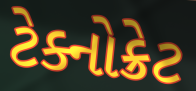
ટેક્નોક્રેટ